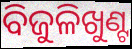
ବିଜୁଳିଖୁଣ୍ଟ